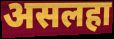
असलहा